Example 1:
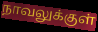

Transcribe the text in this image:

நாவலுக்குள்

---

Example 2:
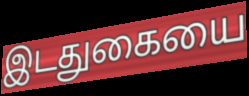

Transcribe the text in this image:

இடதுகையை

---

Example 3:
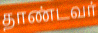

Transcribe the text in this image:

தாண்டவர்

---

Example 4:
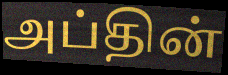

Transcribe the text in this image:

அப்தின்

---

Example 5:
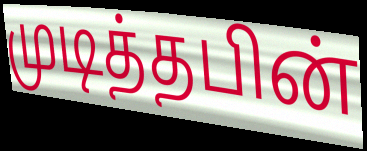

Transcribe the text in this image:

முடித்தபின்